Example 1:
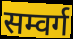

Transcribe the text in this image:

सम्वर्ग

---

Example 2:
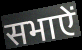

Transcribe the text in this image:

सभाऐं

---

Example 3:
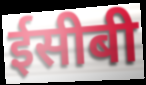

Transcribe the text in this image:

ईसीबी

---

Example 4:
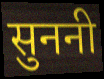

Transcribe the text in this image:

सुननी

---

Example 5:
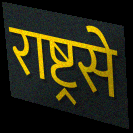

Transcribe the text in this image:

राष्ट्रसे